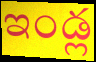
ఇండ్ల